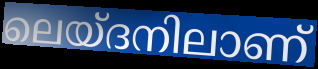
ലെയ്ദനിലാണ്